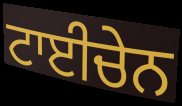
ਟਾਈਚੇਨ